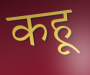
कहू